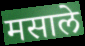
मसाले